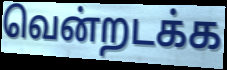
வென்றடக்க